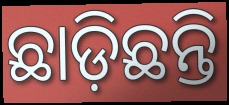
ଛାଡ଼ିଛନ୍ତି